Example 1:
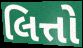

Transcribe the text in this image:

લિત્તો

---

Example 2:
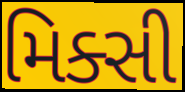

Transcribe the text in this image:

મિક્સી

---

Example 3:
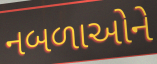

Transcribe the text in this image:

નબળાઓને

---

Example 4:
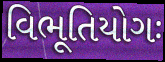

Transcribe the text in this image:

વિભૂતિયોગઃ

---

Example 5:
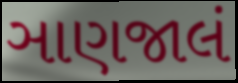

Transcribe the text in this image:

ઞાણજાલં